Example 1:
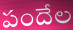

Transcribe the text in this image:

పందేల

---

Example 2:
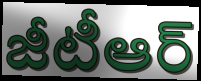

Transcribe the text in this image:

జీటీఆర్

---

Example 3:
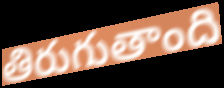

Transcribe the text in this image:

తిరుగుతాంది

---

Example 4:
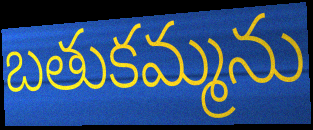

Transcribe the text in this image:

బతుకమ్మను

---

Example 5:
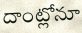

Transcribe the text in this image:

దాంట్లోనూ